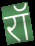
रॉ